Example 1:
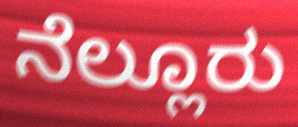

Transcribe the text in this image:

ನೆಲ್ಲೂರು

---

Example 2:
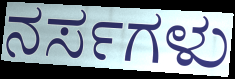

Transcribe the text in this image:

ನರ್ಸಗಳು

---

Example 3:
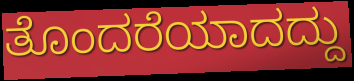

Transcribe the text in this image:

ತೊಂದರೆಯಾದದ್ದು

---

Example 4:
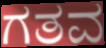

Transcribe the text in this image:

ಗತವ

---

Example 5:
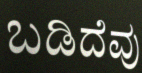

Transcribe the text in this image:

ಬಡಿದೆವು